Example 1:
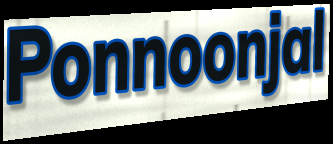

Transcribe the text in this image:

Ponnoonjal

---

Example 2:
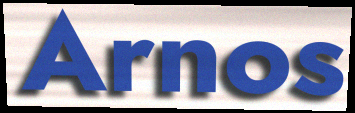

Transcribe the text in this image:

Arnos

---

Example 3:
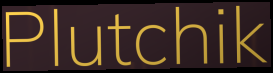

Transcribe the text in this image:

Plutchik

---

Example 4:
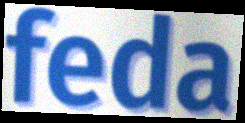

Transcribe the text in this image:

feda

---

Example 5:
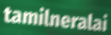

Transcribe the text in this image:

tamilneralai